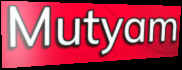
Mutyam